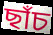
ছাঁচ